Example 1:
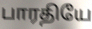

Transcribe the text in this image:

பாரதியே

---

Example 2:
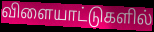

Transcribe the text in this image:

விளையாட்டுகளில்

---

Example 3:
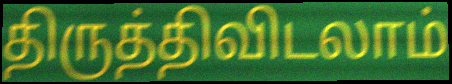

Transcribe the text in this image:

திருத்திவிடலாம்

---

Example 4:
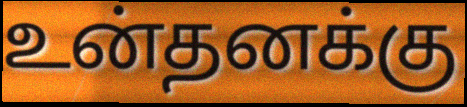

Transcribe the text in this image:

உன்தனக்கு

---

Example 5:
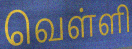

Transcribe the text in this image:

வெள்ளி